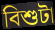
বিশুটা